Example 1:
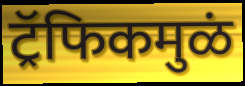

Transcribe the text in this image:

ट्रॅफिकमुळं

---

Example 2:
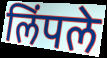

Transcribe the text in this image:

लिंपले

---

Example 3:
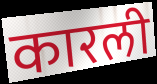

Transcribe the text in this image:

कारली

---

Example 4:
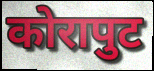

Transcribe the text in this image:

कोरापुट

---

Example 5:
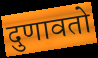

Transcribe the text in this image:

दुणावतो